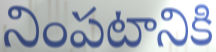
నింపటానికి